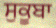
ਸੁਕੂਬਾ